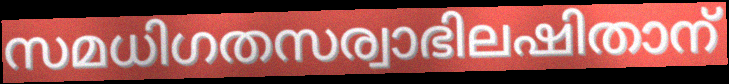
സമധിഗതസര്വാഭിലഷിതാന്